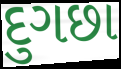
દુગછા